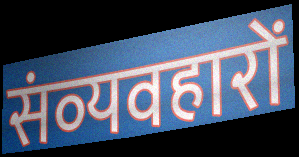
संव्‍यवहारों